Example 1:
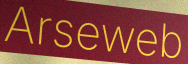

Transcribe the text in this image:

Arseweb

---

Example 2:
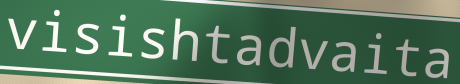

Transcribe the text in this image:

visishtadvaita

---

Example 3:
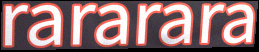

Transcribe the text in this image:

rararara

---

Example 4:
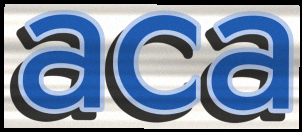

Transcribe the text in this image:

aca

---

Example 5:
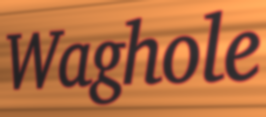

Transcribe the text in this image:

Waghole